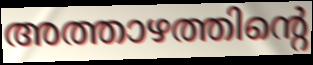
അത്താഴത്തിന്റെ